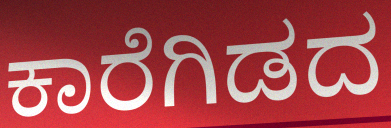
ಕಾರೆಗಿಡದ